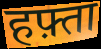
हफ़्ता